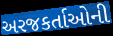
અરજકર્તાઓની